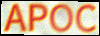
APOC